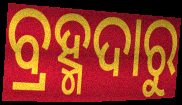
ବ୍ରହ୍ମଦାରୁ